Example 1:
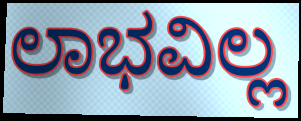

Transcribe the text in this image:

ಲಾಭವಿಲ್ಲ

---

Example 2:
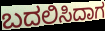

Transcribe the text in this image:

ಬದಲಿಸಿದಾಗ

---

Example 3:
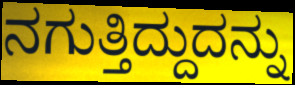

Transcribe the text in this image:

ನಗುತ್ತಿದ್ದುದನ್ನು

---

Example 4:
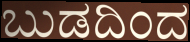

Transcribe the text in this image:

ಬುಡದಿಂದ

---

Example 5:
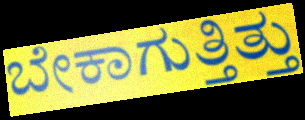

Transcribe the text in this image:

ಬೇಕಾಗುತ್ತಿತ್ತು